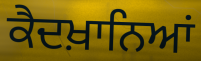
ਕੈਦਖ਼ਾਨਿਆਂ